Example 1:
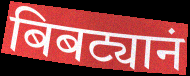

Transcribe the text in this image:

बिबट्यानं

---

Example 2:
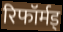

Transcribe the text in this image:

रिफॉर्मड्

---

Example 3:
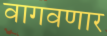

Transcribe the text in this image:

वागवणार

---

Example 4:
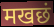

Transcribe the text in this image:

मखछं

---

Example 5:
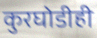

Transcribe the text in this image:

कुरघोडीही